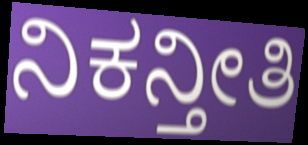
ನಿಕನ್ತೀತಿ